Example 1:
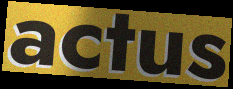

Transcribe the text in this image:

actus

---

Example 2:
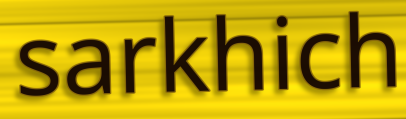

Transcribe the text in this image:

sarkhich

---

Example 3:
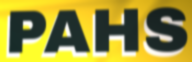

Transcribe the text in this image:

PAHS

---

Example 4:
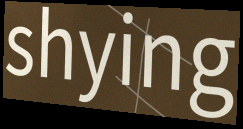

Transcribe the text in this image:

shying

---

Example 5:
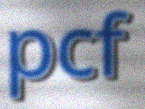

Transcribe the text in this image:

pcf